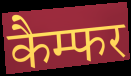
कैम्फर